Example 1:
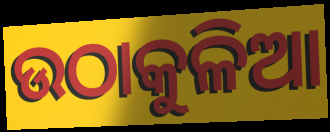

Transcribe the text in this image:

ଉଠାକୁଳିଆ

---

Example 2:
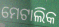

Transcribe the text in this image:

ମେଟାଲିକ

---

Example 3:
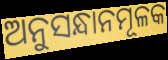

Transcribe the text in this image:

ଅନୁସନ୍ଧାନମୂଳକ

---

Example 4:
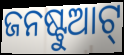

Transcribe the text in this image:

ଜନଷ୍ଟୁଆଟ୍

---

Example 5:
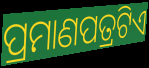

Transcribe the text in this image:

ପ୍ରମାଣପତ୍ରଟିଏ